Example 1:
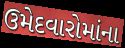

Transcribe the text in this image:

ઉમેદવારોમાંના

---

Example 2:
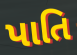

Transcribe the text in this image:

પાતિ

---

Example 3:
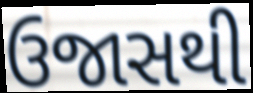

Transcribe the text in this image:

ઉજાસથી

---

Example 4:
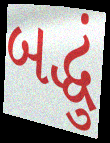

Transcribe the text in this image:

બદ્ધું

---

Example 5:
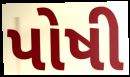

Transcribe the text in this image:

પોષી